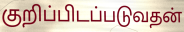
குறிப்பிடப்படுவதன்